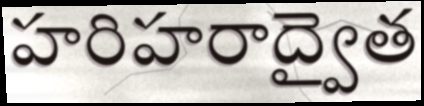
హరిహరాద్వైత